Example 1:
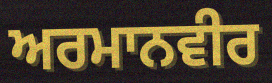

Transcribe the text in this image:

ਅਰਮਾਨਵੀਰ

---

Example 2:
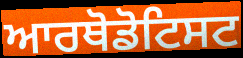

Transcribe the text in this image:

ਆਰਥੋਡੋਟਿਸਟ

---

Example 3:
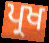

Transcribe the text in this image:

ਪ੍ਰਖ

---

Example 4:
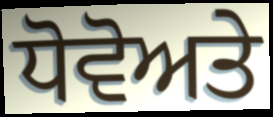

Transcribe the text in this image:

ਧੋਵੋਅਤੇ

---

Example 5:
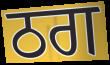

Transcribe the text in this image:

ਠਗ